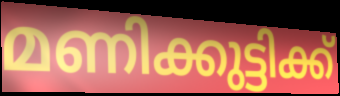
മണിക്കുട്ടിക്ക്